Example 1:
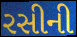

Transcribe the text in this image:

રસીની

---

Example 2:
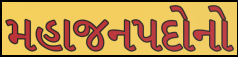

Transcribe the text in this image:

મહાજનપદોનો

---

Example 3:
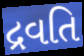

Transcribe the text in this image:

દ્રવતિ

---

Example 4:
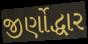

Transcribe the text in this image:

જીર્ણોદ્ધાર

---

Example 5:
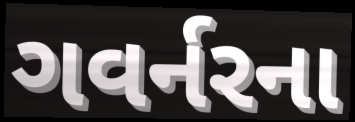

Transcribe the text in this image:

ગવર્નરના